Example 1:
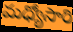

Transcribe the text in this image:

మధ్యోసారి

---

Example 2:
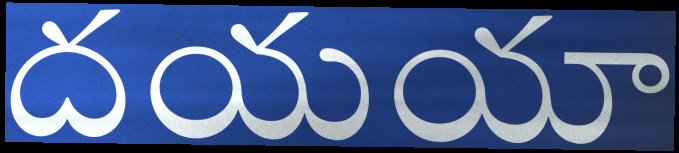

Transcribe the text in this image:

దయయా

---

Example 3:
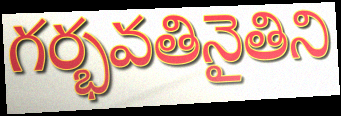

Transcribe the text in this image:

గర్భవతినైతిని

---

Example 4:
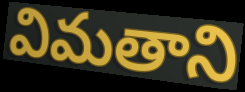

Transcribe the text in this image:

విమతాని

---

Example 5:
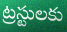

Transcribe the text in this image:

ట్రస్టులకు